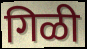
गिळी